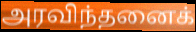
அரவிந்தனைக்